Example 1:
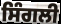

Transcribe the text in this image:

ਸਿੰਗਲੀ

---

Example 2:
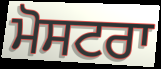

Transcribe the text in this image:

ਮੋਸਟਰਾ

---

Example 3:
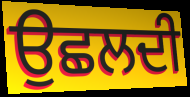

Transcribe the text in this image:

ਉਛਲਦੀ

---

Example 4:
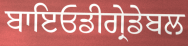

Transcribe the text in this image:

ਬਾਇਓਡੀਗ੍ਰੇਡੇਬਲ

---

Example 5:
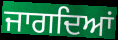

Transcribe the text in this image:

ਜਾਗਦਿਆਂ